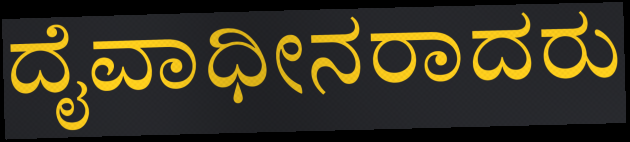
ದೈವಾಧೀನರಾದರು